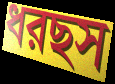
ধরছস